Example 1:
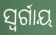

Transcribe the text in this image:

ସ୍ବର୍ଗାୟ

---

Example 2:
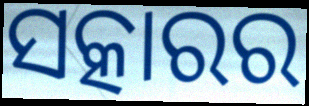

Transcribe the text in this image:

ସତ୍କାରର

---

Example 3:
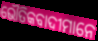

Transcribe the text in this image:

ଭୌତିକବାଦୀମାନେ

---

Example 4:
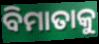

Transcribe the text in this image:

ବିମାତାକୁ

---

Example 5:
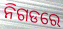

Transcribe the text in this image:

ନିଗଡରେ